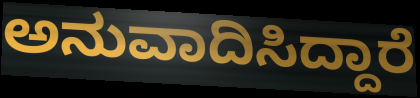
ಅನುವಾದಿಸಿದ್ದಾರೆ